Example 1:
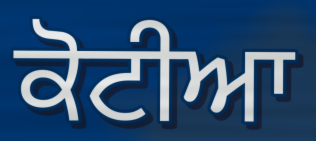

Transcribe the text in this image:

ਕੋਟੀਆ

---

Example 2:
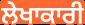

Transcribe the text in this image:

ਲੇਖਾਕਾਰੀ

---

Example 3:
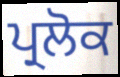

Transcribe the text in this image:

ਪ੍ਰਲੋਕ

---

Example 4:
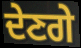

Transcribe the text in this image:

ਦੇਣਗੇ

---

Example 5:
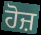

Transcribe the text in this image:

ਹੋਜ਼